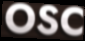
OSC